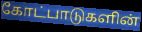
கோட்பாடுகளின்